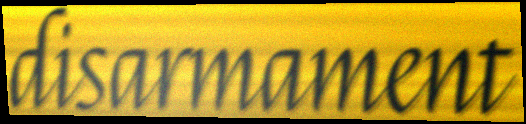
disarmament